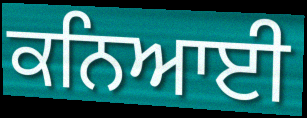
ਕਨਿਆਈ